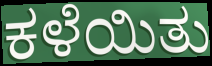
ಕಳೆಯಿತು